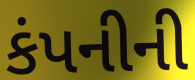
કંપનીની